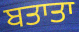
ਬਤਾਤਾ